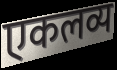
एकलव्य